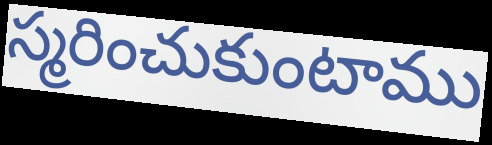
స్మరించుకుంటాము